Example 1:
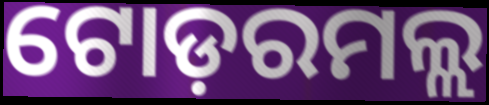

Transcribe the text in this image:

ଟୋଡ଼ରମଲ୍ଲ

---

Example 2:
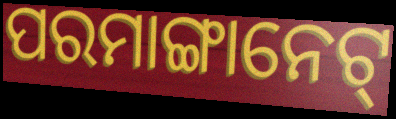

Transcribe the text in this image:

ପରମାଙ୍ଗାନେଟ୍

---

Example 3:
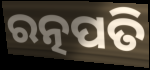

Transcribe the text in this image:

ରତ୍ନପତି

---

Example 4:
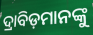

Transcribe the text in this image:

ଦ୍ରାବିଡ଼ମାନଙ୍କୁ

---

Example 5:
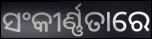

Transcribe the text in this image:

ସଂକୀର୍ଣ୍ଣତାରେ